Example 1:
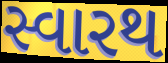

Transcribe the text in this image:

સ્વારથ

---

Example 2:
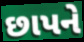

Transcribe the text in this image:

છાપને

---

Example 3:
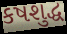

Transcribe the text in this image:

કષશુદ્ધ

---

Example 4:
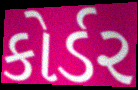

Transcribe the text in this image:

કોર્ડર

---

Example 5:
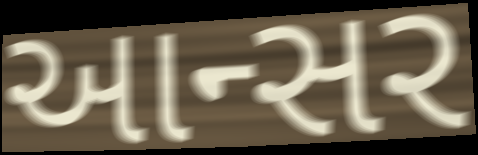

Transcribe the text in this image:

આન્સર